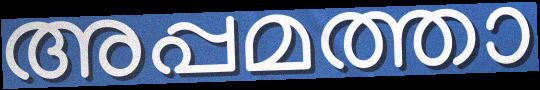
അപ്പമത്താ